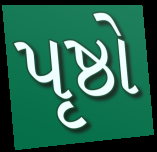
પૃષ્ઠો